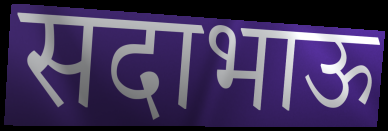
सदाभाऊ